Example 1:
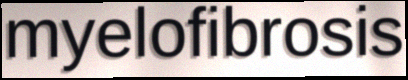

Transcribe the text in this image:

myelofibrosis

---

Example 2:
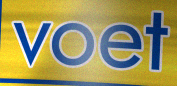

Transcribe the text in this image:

voet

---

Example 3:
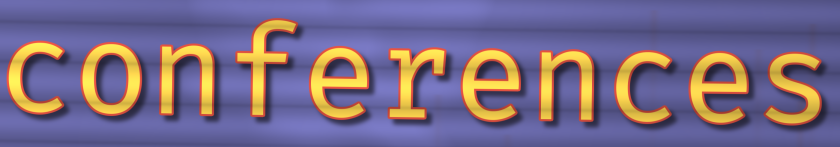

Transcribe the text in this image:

conferences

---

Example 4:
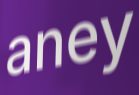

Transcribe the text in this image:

aney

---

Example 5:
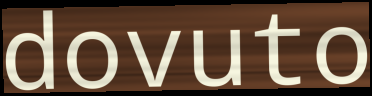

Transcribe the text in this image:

dovuto